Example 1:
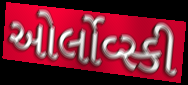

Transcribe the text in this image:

ઓર્લોવ્સ્કી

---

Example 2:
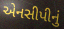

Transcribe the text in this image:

એનસીપીનું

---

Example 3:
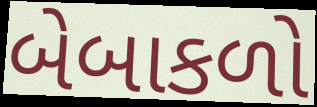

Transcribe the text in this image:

બેબાકળો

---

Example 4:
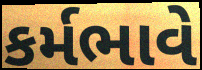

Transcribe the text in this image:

કર્મભાવે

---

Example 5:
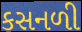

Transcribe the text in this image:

કસનળી